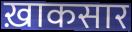
ख़ाकसार